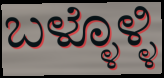
ಬಳ್ಳೊಳ್ಳಿ